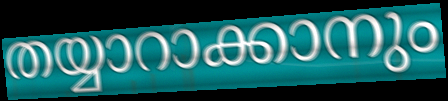
തയ്യാറാക്കാനും